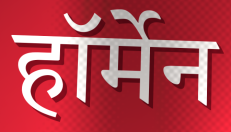
हॉर्मेन